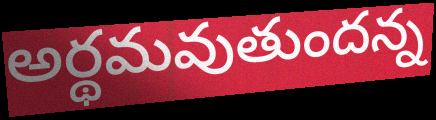
అర్థమవుతుందన్న